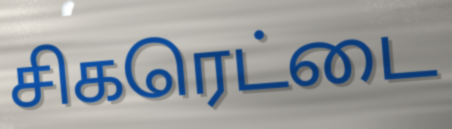
சிகரெட்டை